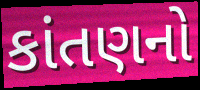
કાંતણનો